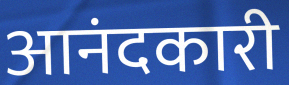
आनंदकारी